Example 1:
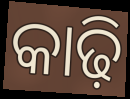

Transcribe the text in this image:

କାଢ଼ି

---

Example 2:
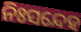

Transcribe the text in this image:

ନିଃସନ୍ଦେହ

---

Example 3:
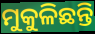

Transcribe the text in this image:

ମୁକୁଳିଛନ୍ତି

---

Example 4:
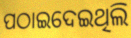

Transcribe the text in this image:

ପଠାଇଦେଇଥିଲି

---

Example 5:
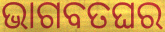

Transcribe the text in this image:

ଭାଗବତଘର